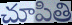
చూపితి